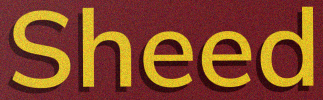
Sheed